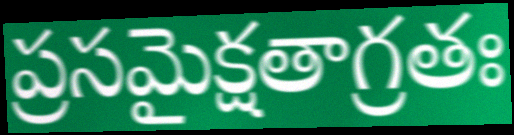
ప్రసమైక్షతాగ్రతః